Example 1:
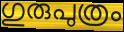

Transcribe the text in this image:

ഗുരുപുത്രം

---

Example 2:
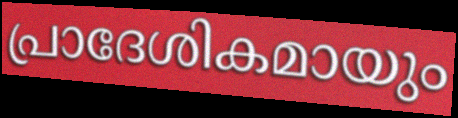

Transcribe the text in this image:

പ്രാദേശികമായും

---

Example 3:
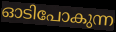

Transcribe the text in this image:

ഓടിപോകുന്ന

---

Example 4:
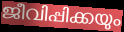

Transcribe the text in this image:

ജീവിപ്പിക്കയും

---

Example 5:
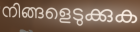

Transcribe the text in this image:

നിങ്ങളെടുക്കുക